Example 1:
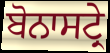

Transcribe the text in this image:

ਬੋਨਾਸਟ੍ਰੇ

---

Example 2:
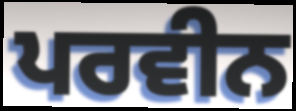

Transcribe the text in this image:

ਪਰਵੀਨ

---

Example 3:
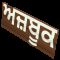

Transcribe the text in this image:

ਅਜ਼ਬੂਕ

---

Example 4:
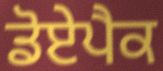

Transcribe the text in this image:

ਡੋਏਪੈਕ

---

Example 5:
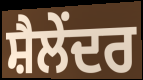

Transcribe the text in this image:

ਸ਼ੈਲੇਂਦਰ